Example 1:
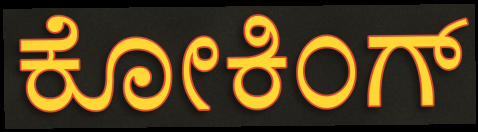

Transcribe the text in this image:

ಕೋಕಿಂಗ್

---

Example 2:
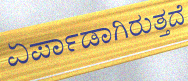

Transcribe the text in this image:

ಏರ್ಪಾಡಾಗಿರುತ್ತದೆ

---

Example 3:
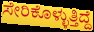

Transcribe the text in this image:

ಸೇರಿಕೊಳ್ಳುತ್ತಿದ್ದೆ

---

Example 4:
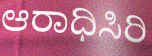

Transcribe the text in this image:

ಆರಾಧಿಸಿರಿ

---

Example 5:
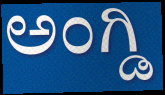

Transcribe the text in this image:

ಅಂಗ್ಡಿ